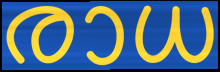
രാധ